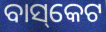
ବାସ୍‌କେଟ